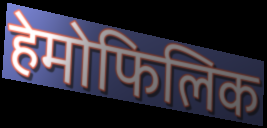
हेमोफिलिक